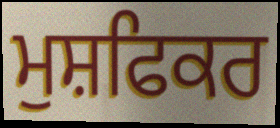
ਮੁਸ਼ਫਿਕਰ